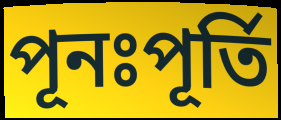
পূনঃপূৰ্তি